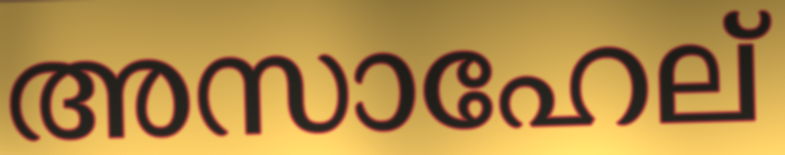
അസാഹേല്